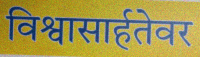
विश्वासार्हतेवर